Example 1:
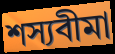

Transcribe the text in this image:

শস্যবীমা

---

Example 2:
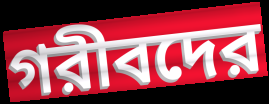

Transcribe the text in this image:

গরীবদের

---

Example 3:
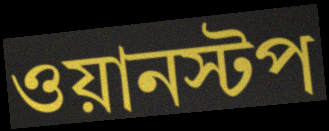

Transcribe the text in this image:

ওয়ানস্টপ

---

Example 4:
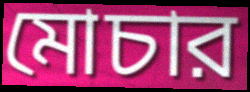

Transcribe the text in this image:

মোচার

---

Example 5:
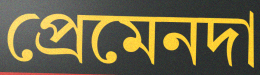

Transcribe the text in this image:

প্রেমেনদা